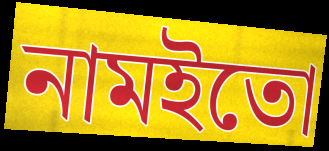
নামইতো